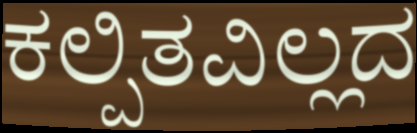
ಕಲ್ಪಿತವಿಲ್ಲದ